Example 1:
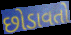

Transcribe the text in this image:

છોડાવતો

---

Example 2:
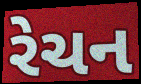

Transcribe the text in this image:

રેચન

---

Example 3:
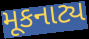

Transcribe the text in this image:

મૂકનાટ્ય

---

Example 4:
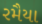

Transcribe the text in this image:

રમૈયા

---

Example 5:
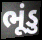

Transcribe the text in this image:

ભૂંડુ